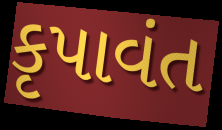
કૃપાવંત